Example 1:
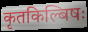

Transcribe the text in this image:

कृतकिल्बिषः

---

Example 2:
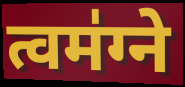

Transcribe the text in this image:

त्वम॑ग्ने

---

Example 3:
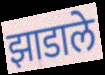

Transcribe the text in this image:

झाडाले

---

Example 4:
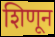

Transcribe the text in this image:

शिणून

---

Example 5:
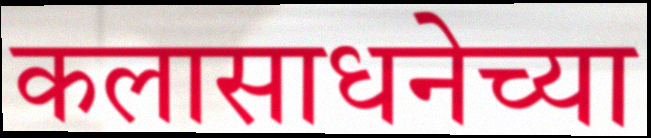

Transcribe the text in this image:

कलासाधनेच्या